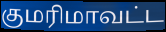
குமரிமாவட்ட